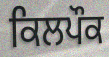
ਕਿਲਪੌਕ